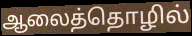
ஆலைத்தொழில்